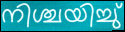
നിശ്ചയിച്ചു്